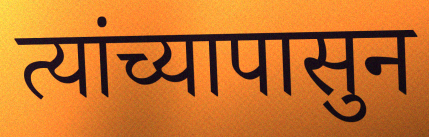
त्यांच्यापासुन